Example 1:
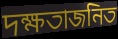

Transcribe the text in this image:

দক্ষতাজনিত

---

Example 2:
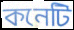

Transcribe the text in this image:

কনেটি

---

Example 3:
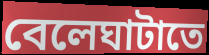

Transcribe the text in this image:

বেলেঘাটাতে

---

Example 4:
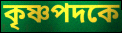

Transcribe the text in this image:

কৃষ্ণপদকে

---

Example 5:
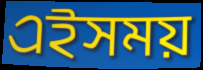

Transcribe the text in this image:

এইসময়